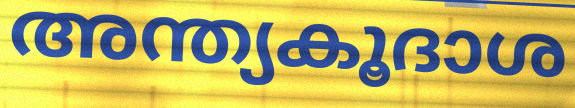
അന്ത്യകൂദാശ